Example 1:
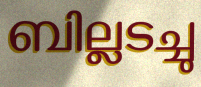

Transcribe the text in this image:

ബില്ലടച്ചു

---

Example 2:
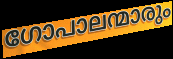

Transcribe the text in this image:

ഗോപാലന്മാരും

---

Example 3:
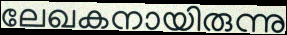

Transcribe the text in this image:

ലേഖകനായിരുന്നു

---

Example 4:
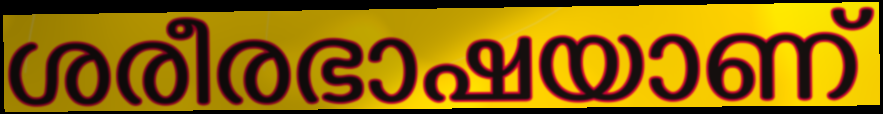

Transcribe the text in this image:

ശരീരഭാഷയാണ്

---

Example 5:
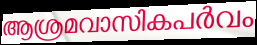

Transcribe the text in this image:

ആശ്രമവാസികപർവം